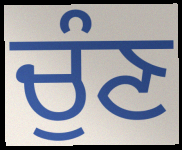
ਚੁੰਣ